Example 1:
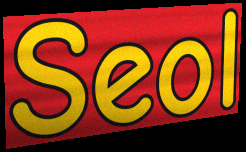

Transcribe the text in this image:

Seol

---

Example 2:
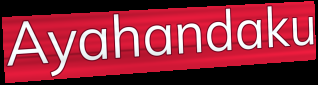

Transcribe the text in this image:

Ayahandaku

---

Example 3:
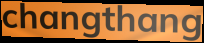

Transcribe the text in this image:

changthang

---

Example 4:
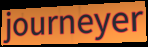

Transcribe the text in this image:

journeyer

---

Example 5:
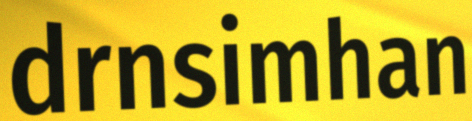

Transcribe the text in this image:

drnsimhan